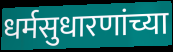
धर्मसुधारणांच्या